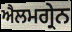
ਐਲਮਗ੍ਰੇਨ